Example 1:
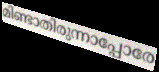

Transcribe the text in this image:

മിണ്ടാതിരുന്നാപ്പോരേ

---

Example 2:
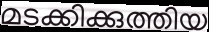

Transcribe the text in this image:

മടക്കിക്കുത്തിയ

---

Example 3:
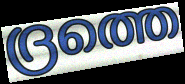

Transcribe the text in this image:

ദ്രത്തെ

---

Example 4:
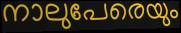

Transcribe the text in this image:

നാലുപേരെയും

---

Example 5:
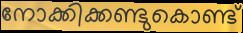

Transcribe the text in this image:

നോക്കിക്കണ്ടുകൊണ്ട്